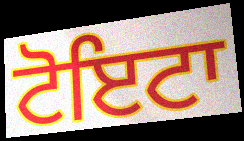
ਟੋਇਟਾ